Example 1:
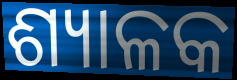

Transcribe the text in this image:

ଶ୍ୟାଳକ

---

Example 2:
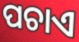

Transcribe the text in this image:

ପଚାଏ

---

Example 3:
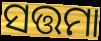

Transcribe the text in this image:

ସତ୍ତମା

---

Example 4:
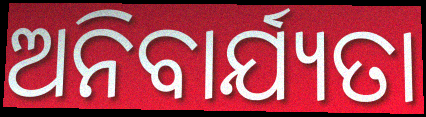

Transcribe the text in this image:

ଅନିବାର୍ଯ୍ୟତା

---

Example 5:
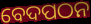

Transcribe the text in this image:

ବେଦପଠନ